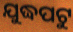
ଯୁଦ୍ଧପଟୁ